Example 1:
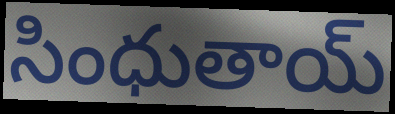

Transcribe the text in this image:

సింధుతాయ్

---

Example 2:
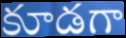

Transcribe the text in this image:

కూడగా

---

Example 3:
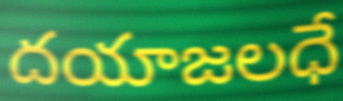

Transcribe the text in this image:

దయాజలధే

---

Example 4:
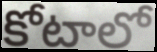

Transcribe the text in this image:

కోటాలో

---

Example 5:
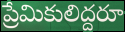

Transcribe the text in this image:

ప్రేమికులిద్దరూ